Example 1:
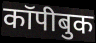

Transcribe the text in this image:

कॉपीबुक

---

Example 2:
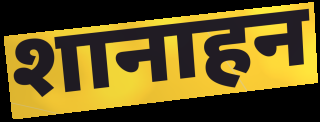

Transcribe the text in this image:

शानाहन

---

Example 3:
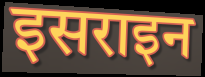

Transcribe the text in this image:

इसराइन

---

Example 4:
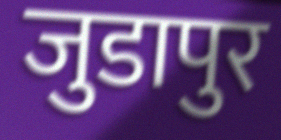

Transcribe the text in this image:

जुडापुर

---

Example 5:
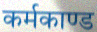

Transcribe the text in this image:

कर्मकाण्ड